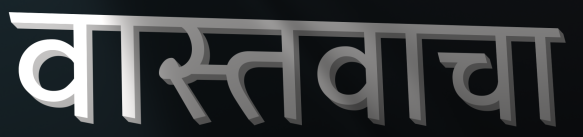
वास्तवाचा